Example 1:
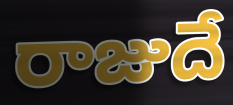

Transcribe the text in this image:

రాజుదే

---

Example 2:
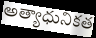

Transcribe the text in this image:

అత్యాధునికత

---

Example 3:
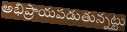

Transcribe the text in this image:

అభిప్రాయపడుతున్నట్టు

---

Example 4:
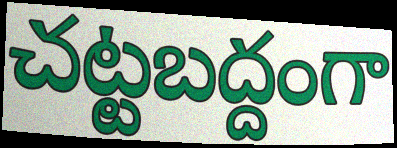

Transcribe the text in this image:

చట్టబద్దంగా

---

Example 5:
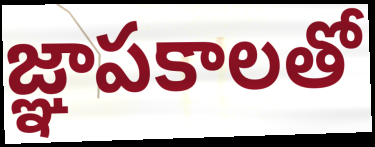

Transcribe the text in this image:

జ్ఞాపకాలతో